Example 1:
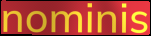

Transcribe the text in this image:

nominis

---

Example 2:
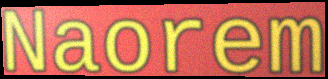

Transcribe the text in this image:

Naorem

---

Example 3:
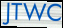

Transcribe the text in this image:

JTWC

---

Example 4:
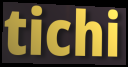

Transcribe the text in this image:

tichi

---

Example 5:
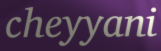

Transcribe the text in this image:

cheyyani